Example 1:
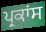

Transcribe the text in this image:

ਪ੍ਰਕਾਂਸ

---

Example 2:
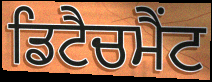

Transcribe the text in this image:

ਡਿਟੈਚਮੈਂਟ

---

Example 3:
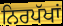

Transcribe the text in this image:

ਨਿਰਪੱਖਾਂ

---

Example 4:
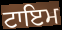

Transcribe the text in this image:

ਟਾਇਮ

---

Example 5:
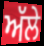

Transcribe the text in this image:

ਅੱਲੇ